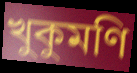
খুকুমণি